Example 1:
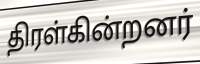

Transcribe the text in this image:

திரள்கின்றனர்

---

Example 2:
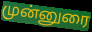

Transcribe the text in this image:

முன்னுரை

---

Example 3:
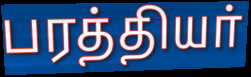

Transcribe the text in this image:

பரத்தியர்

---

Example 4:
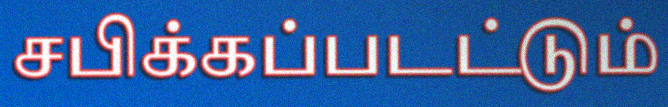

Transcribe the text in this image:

சபிக்கப்படட்டும்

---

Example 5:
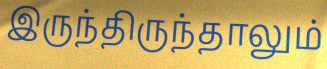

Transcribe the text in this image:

இருந்திருந்தாலும்